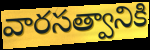
వారసత్వానికి